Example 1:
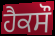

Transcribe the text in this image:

ਹੈਕਸੌ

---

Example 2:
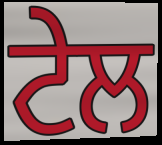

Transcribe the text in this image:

ਟੇਲ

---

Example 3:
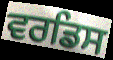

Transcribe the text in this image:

ਵਰਡਿਸ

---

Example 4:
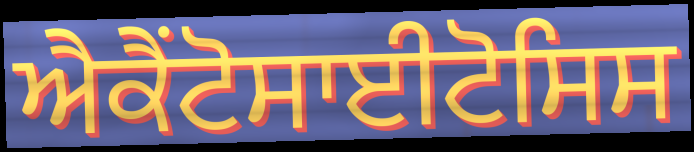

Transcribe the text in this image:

ਐਕੈਂਟੋਸਾਈਟੋਸਿਸ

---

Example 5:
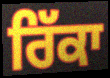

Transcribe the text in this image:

ਰਿੱਕਾ